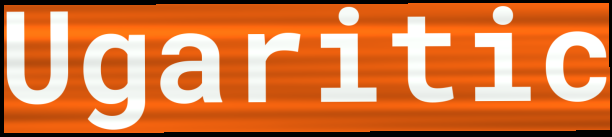
Ugaritic